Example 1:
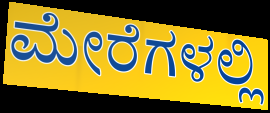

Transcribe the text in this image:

ಮೇರೆಗಳಲ್ಲಿ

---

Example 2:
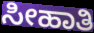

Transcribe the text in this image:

ಸೀಹಾತಿ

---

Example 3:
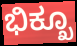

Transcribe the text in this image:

ಭಿಕ್ಖೂ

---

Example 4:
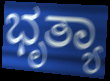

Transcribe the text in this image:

ಭೃತ್ಯಾ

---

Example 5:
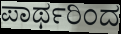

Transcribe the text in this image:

ಪಾರ್ಥರಿಂದ